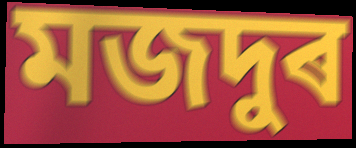
মজদুৰ